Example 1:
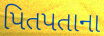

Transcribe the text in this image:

પિતપતાના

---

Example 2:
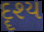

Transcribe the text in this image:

દૄશ્ય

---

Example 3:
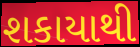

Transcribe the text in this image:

શકાયાથી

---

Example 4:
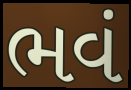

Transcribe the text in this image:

ભવં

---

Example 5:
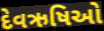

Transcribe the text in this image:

દેવઋષિઓ